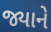
જ્યાને